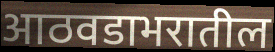
आठवडाभरातील